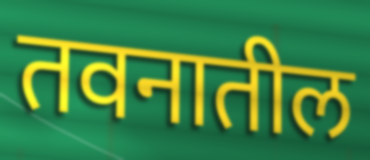
तवनातील